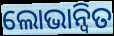
ଲୋଭାନ୍ୱିତ